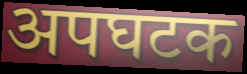
अपघटक